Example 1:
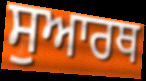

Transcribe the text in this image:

ਸੁਆਰਥ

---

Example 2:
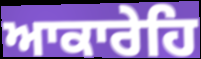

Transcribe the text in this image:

ਆਕਾਰੇਹਿ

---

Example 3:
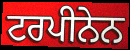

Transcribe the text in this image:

ਟਰਪੀਨੇਨ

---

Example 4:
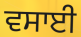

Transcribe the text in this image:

ਵਸਾਈ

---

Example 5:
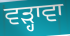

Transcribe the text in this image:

ਵੜ੍ਹਾਵਾ